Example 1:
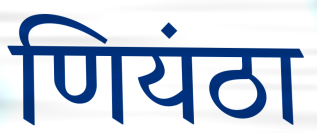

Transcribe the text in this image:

णियंठा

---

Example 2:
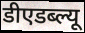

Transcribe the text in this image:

डीएडब्ल्यू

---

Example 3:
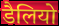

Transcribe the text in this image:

डैलियो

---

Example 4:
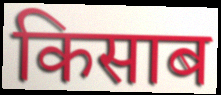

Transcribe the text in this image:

किसाब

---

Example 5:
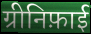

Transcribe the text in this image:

ग्रीनिफ़ाई